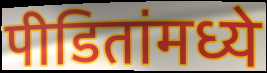
पीडितांमध्ये